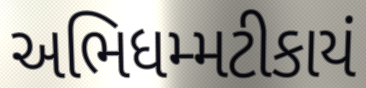
અભિધમ્મટીકાયં